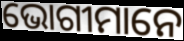
ଭୋଗୀମାନେ